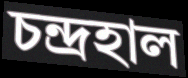
চন্দ্ৰহাল